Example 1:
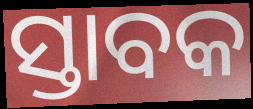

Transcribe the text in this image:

ସ୍ତାବକ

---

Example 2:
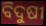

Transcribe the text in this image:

ବିଦୁଷୀ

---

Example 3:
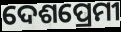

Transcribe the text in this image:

ଦେଶପ୍ରେମୀ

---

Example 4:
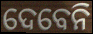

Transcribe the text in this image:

ଦେବେନି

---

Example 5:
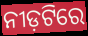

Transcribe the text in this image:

ନୀଡ଼ଟିରେ